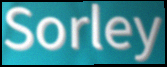
Sorley